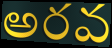
అరవ